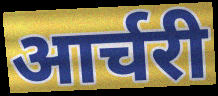
आर्चरी